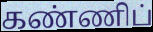
கண்ணிப்